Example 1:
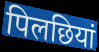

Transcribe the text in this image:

पिलछियां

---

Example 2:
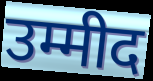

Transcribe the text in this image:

उम्‍मीद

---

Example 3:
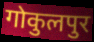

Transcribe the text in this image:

गोकुलपुर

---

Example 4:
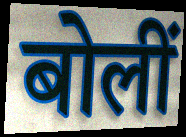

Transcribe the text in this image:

बोलीं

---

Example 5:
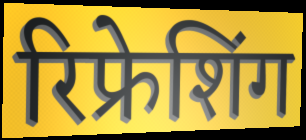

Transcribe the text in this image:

रिफ्रेशिंग